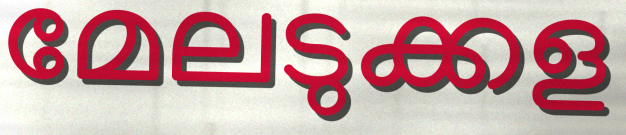
മേലടുക്കള